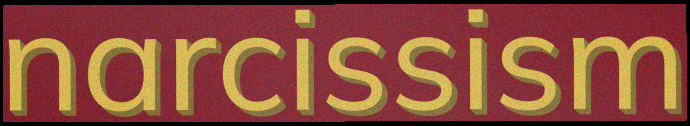
narcissism